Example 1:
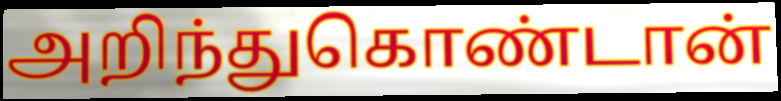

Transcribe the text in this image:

அறிந்துகொண்டான்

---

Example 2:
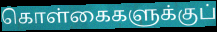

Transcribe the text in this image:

கொள்கைகளுக்குப்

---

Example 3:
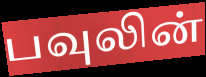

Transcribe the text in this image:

பவுலின்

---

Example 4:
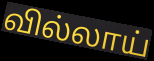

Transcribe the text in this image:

வில்லாய்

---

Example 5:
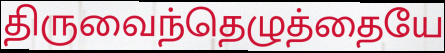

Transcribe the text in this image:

திருவைந்தெழுத்தையே